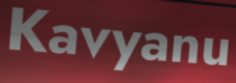
Kavyanu